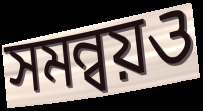
সমন্বয়ও